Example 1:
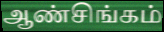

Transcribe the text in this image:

ஆண்சிங்கம்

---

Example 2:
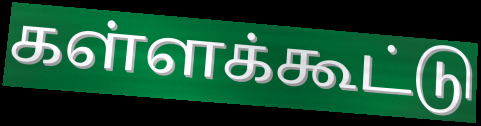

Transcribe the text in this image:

கள்ளக்கூட்டு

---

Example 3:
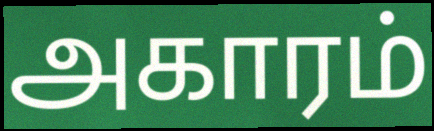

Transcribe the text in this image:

அகாரம்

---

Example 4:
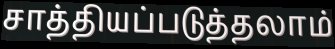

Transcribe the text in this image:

சாத்தியப்படுத்தலாம்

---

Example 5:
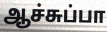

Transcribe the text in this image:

ஆச்சுப்பா